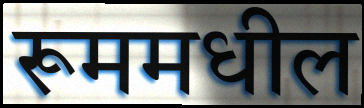
रूममधील